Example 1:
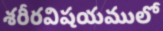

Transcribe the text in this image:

శరీరవిషయములో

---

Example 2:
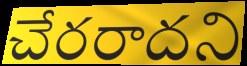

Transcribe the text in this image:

చేరరాదని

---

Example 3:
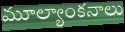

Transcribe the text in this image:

మూల్యాంకనాలు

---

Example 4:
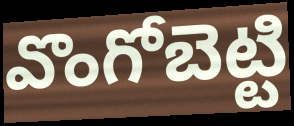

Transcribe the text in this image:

వొంగోబెట్టి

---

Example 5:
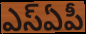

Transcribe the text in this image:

ఎస్ఏపీ